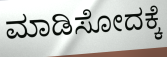
ಮಾಡಿಸೋದಕ್ಕೆ